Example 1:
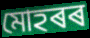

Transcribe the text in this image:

মোহৰৰ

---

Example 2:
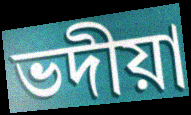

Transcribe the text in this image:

ভদীয়া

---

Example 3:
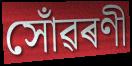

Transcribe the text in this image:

সোঁৱৰণী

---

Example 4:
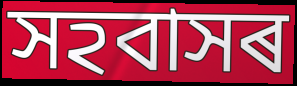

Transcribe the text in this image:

সহবাসৰ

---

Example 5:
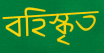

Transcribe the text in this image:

বহিস্কৃত